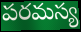
పరమస్య